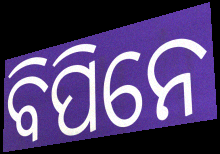
ବିପିନେ